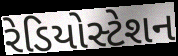
રેડિયોસ્ટેશન